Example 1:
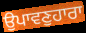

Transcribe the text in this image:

ਉਪਾਵਣੁਹਾਰਾ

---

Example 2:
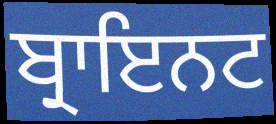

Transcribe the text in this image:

ਬ੍ਰਾਇਨਟ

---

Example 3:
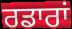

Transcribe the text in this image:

ਰਡਾਰਾਂ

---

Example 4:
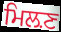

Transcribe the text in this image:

ਮਿਲ਼ਣ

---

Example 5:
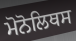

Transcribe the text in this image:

ਮੋਨੋਲਿਥਸ